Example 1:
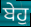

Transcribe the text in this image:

ਬੇਹੁ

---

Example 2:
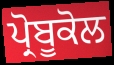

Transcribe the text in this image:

ਪ੍ਰੋਬੂਕੋਲ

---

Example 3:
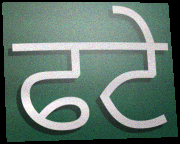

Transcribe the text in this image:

ਫਟੇ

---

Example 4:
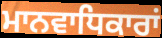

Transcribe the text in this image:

ਮਾਨਵਾਧਿਕਾਰਾਂ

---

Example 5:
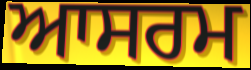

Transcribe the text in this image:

ਆਸਰਮ